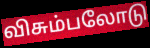
விசும்பலோடு